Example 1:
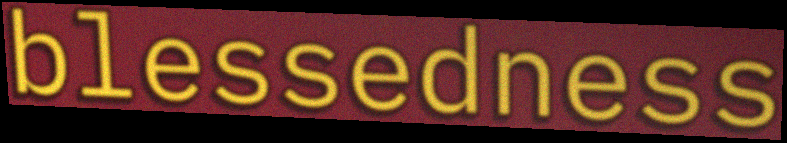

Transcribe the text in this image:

blessedness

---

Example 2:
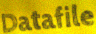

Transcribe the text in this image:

Datafile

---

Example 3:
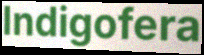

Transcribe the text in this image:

Indigofera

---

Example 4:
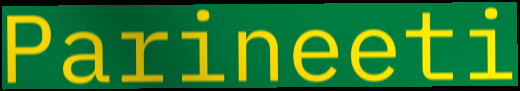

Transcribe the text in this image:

Parineeti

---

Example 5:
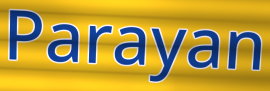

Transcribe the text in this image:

Parayan